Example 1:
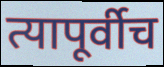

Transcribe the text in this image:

त्यापूर्वीच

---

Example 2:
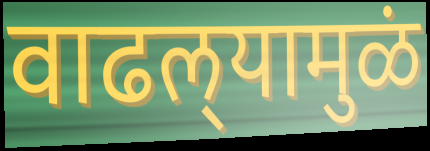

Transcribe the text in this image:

वाढल्यामुळं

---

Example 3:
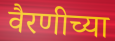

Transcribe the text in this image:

वैरणीच्या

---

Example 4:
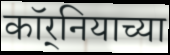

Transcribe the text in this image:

कॉर्नियाच्या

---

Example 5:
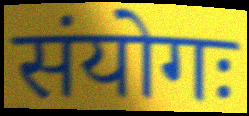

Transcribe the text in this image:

संयोगः